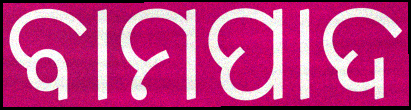
ବାମପାଦ